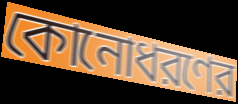
কোনোধরণের